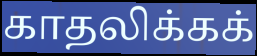
காதலிக்கக்